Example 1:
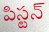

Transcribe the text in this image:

పిస్టన్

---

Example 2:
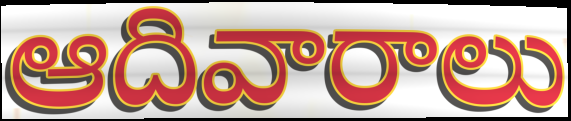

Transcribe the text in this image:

ఆదివారాలు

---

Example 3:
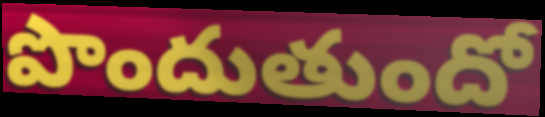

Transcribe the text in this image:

పొందుతుందో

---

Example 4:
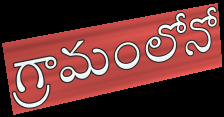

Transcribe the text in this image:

గ్రామంలోనో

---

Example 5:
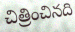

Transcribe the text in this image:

చిత్రించినది